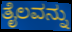
ತೈಲವನ್ನು